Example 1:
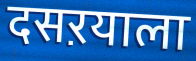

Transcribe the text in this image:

दसऱयाला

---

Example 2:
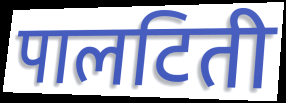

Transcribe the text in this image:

पालटिती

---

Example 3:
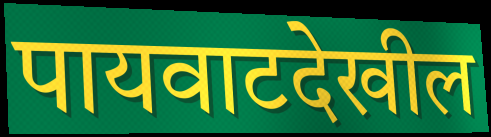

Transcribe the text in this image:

पायवाटदेखील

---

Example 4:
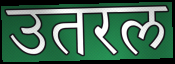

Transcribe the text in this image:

उतरल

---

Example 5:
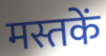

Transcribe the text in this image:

मस्तकें